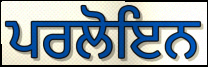
ਪਰਲੋਇਨ